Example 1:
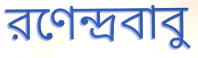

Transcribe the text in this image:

রণেন্দ্রবাবু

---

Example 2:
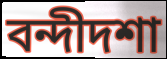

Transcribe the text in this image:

বন্দীদশা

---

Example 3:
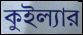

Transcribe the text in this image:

কুইল্যার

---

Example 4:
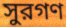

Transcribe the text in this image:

সুরগণ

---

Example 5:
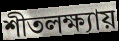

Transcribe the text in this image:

শীতলক্ষ্যায়